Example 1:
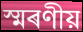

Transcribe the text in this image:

স্মৰণীয়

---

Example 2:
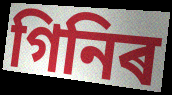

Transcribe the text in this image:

গিনিৰ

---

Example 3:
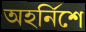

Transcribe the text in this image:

অহৰ্নিশে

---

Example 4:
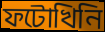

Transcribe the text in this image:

ফটোখিনি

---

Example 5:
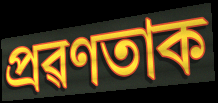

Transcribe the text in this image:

প্ৰৱণতাক